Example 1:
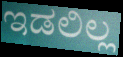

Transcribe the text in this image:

ಇಡಲಿಲ್ಲ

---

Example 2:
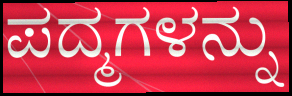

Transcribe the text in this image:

ಪದ್ಮಗಳನ್ನು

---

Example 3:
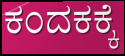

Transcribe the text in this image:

ಕಂದಕಕ್ಕೆ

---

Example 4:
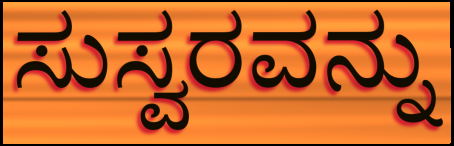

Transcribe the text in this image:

ಸುಸ್ವರವನ್ನು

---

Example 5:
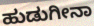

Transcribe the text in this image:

ಹುಡುಗೀನಾ